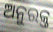
ଅନୁରକ୍ତ